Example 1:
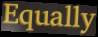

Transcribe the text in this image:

Equally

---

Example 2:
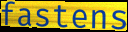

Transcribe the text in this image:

fastens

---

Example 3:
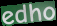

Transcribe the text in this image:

edho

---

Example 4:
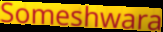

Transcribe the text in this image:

Someshwara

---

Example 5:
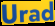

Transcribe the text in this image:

Urad